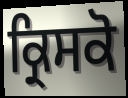
ਕ੍ਰਿਸਕੋ